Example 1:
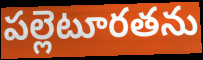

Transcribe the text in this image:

పల్లెటూరతను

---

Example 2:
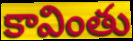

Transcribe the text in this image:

కావింతు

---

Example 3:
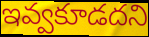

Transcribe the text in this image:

ఇవ్వకూడదని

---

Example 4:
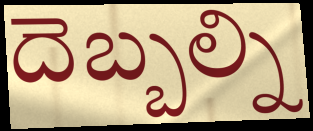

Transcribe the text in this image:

దెబ్బల్ని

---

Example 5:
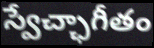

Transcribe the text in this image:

స్వేచ్ఛాగీతం